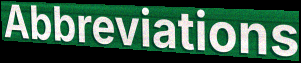
Abbreviations